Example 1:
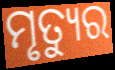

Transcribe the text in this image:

ମୃତ୍ୟୁର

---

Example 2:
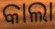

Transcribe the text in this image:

କାଲା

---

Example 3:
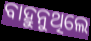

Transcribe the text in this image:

ବାହୁନୁଥିଲେ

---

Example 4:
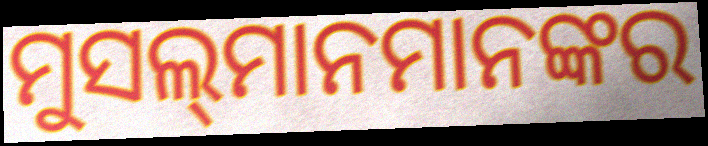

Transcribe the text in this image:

ମୁସଲ୍‌ମାନମାନଙ୍କର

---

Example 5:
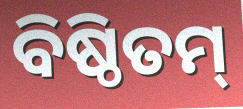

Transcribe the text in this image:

ବିଷ୍ଠିତମ୍